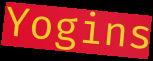
Yogins